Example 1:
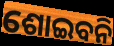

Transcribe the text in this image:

ଶୋଇବନି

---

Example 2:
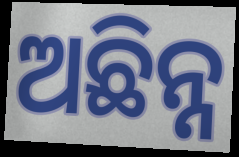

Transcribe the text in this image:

ଅଛିନ୍ନ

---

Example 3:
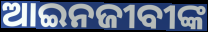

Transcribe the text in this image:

ଆଇନଜୀବୀଙ୍କ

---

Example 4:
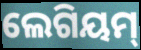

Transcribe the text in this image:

ଲେଗିୟମ୍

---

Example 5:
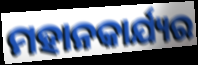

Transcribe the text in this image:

ମହାନକାର୍ଯ୍ୟର